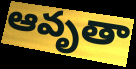
ఆవృతా